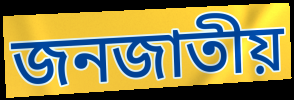
জনজাতীয়